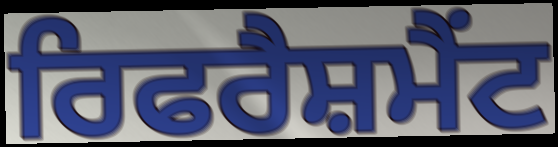
ਰਿਫਰੈਸ਼ਮੈਂਟ